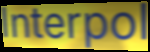
Interpol